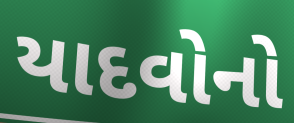
યાદવોનો